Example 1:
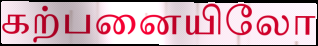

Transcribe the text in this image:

கற்பனையிலோ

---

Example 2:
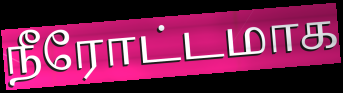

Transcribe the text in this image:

நீரோட்டமாக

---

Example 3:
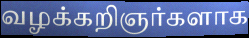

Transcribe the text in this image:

வழக்கறிஞர்களாக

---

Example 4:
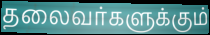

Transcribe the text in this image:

தலைவர்களுக்கும்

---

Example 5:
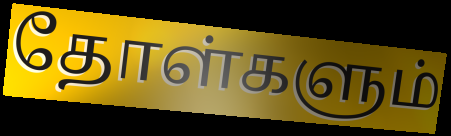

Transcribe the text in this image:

தோள்களும்